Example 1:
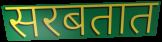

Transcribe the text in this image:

सरबतात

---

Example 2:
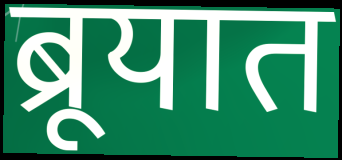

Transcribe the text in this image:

ब्रूयात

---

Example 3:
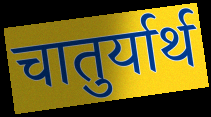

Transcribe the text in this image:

चातुर्यार्थ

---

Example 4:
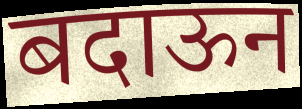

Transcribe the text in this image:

बदाऊन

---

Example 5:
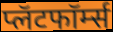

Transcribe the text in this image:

प्लॅटफॉर्म्स